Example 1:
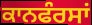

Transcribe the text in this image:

ਕਾਨਫੰਰਸਾਂ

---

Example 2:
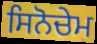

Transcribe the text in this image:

ਸਿਨੋਚੇਮ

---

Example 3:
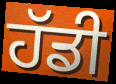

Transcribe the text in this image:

ਹੱਡੀ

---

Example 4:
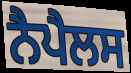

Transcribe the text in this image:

ਨੈਪੈਲਸ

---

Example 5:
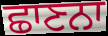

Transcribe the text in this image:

ਛਾਣਨਾ